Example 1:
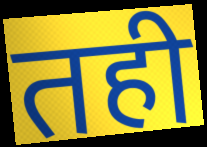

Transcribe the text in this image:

तही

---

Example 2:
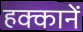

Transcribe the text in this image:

हक्कानें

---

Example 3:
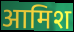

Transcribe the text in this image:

आमिश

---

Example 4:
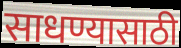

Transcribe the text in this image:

साधण्यासाठी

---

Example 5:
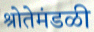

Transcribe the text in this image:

श्रोतेमंडळी